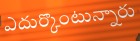
ఎదుర్కొంటున్నారు